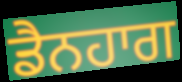
ਡੈਨਹਾਗ